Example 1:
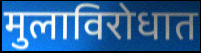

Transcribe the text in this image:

मुलाविरोधात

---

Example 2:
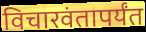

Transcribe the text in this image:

विचारवंतापर्यंत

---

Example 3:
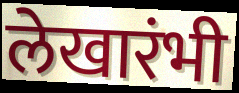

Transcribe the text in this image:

लेखारंभी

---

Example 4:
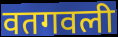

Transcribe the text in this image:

वतगवली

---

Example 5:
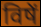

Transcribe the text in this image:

विषें